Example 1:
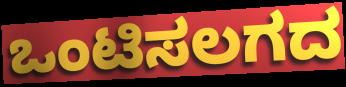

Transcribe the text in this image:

ಒಂಟಿಸಲಗದ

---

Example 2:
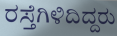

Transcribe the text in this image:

ರಸ್ತೆಗಿಳಿದಿದ್ದರು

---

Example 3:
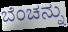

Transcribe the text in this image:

ಬೆಂಚನ್ನು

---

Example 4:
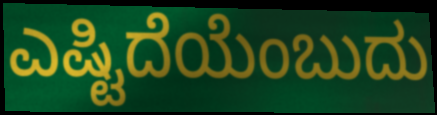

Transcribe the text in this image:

ಎಷ್ಟಿದೆಯೆಂಬುದು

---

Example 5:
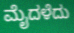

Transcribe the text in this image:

ಮೈದಳೆದು